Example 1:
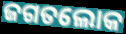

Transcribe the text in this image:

ଜଗତଲୋକ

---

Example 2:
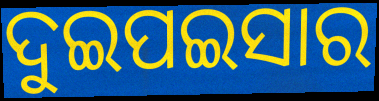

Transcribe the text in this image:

ଦୁଇପଇସାର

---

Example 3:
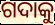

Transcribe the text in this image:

ଗଦାକୁ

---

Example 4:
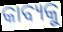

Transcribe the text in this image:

କାବ୍ୟକୁ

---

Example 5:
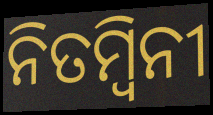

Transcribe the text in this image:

ନିତମ୍ବିନୀ